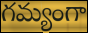
గమ్యంగా